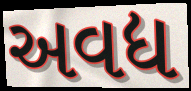
અવદ્ય